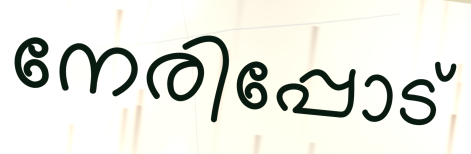
നേരിപ്പോട്